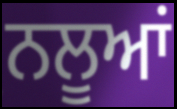
ਨਲੂਆਂ